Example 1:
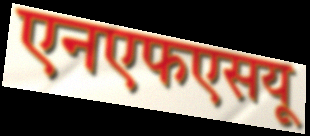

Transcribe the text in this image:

एनएफएसयू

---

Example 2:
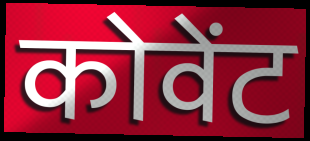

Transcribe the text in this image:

कोवेंट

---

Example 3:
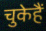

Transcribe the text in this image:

चुकेहैं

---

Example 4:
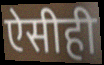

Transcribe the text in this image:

ऐसीही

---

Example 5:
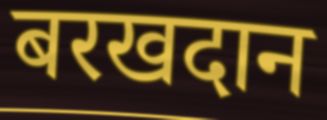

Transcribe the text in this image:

बरखदान